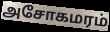
அசோகமரம்